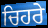
ਚਿਹਰੇ